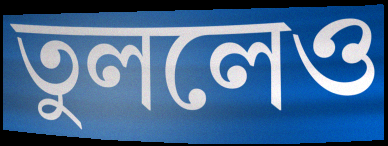
তুললেও